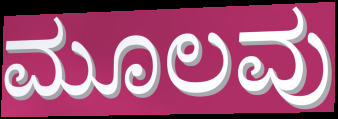
ಮೂಲವು